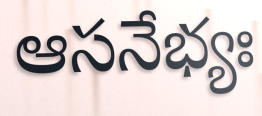
ఆసనేభ్యః